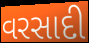
વરસાદી